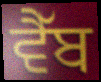
ਵੈੱਬ